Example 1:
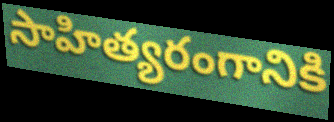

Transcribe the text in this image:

సాహిత్యరంగానికి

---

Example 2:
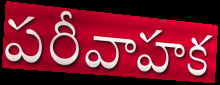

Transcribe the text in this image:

పరీవాహక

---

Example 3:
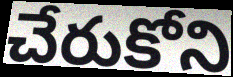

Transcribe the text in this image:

చేరుకోని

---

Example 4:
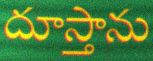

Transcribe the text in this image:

దూస్తాను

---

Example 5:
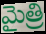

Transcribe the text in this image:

మైత్రి